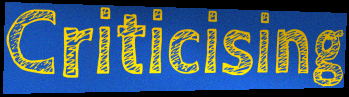
Criticising